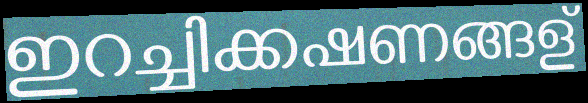
ഇറച്ചിക്കഷണങ്ങള്